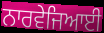
ਨਾਰਵੇਜਿਆਈ